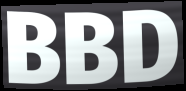
BBD